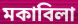
মকাবিলা